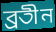
ব্রতীন